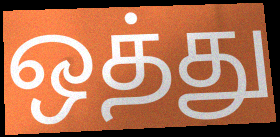
ஒத்து